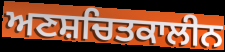
ਅਣਸ਼ਚਿਤਕਾਲੀਨ